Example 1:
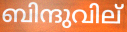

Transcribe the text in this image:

ബിന്ദുവില്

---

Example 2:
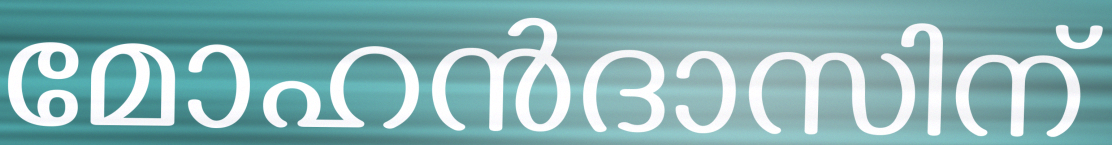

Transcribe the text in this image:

മോഹൻദാസിന്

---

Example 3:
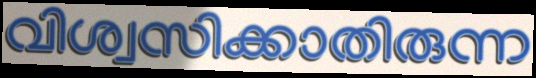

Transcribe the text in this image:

വിശ്വസിക്കാതിരുന്ന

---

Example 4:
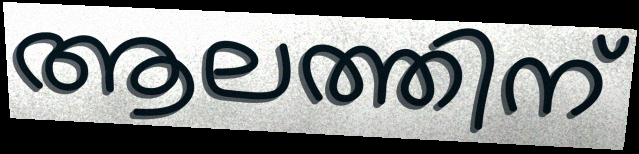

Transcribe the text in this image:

ആലത്തിന്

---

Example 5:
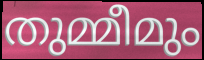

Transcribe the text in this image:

തുമ്മീമും